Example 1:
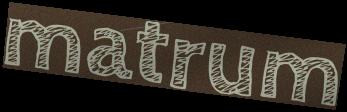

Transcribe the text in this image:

matrum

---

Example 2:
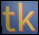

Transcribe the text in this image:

tk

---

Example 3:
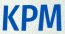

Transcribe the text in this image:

KPM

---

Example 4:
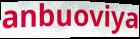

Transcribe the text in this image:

anbuoviya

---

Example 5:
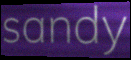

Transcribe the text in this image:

sandy